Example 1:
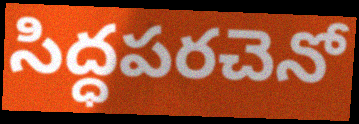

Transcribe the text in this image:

సిద్ధపరచెనో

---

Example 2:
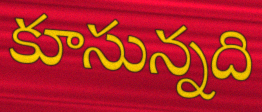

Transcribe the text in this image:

కూసున్నది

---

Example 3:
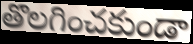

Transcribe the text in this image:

తొలగించకుండా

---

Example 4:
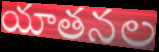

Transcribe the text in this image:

యాతనల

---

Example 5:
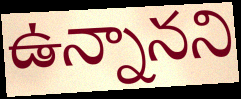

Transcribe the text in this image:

ఉన్నానని